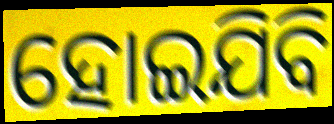
ହୋଇଯିବି